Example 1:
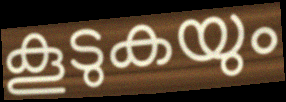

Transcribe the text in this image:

കൂടുകയും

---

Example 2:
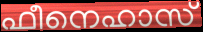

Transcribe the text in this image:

ഫീനെഹാസ്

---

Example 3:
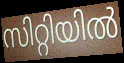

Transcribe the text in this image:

സിറ്റിയിൽ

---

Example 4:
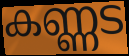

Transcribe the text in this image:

കണ്ണട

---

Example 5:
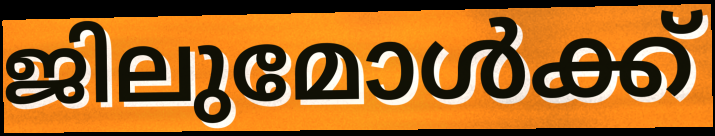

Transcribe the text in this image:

ജിലുമോൾക്ക്